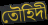
তৌহিদী